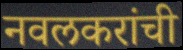
नवलकरांची